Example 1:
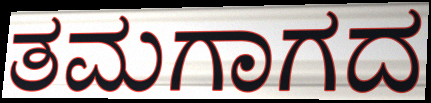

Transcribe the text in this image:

ತಮಗಾಗದ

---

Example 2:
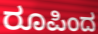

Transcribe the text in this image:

ರೂಪಿಂದ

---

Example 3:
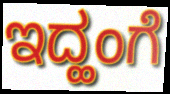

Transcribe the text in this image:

ಇದ್ಹಂಗೆ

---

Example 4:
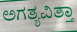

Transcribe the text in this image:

ಅಗತ್ಯವಿತ್ತಾ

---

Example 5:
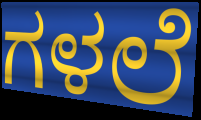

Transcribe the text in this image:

ಗಳಲೆ